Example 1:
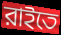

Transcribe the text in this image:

রাইতে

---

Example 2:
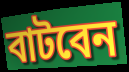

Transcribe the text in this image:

বাটবেন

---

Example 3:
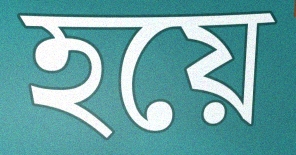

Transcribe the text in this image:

হয়ে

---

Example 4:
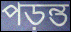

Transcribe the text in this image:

পড়ন্ত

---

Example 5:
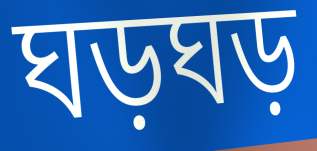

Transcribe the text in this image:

ঘড়ঘড়